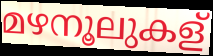
മഴനൂലുകള്